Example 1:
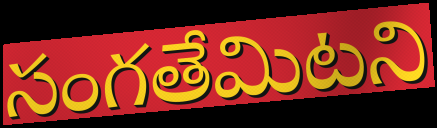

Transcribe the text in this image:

సంగతేమిటని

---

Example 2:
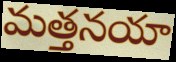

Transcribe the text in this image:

మత్తనయా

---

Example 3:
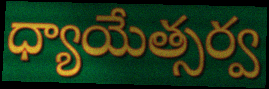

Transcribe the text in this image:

ధ్యాయేత్సర్వ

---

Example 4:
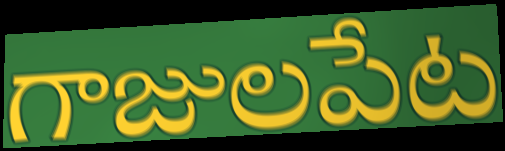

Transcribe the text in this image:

గాజులపేట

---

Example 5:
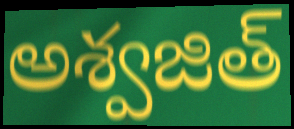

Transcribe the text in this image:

అశ్వజిత్